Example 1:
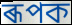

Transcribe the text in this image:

ৰূপক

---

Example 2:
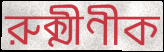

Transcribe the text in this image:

ৰুক্মীণীক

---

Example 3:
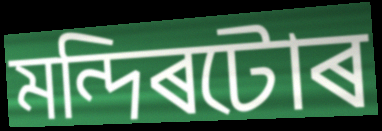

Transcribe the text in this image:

মন্দিৰটোৰ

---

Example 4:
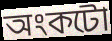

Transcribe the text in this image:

অংকটো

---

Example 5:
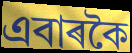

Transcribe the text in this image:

এবাৰকৈ